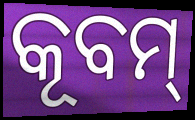
କୂବମ୍